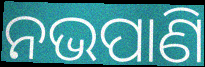
ନଭପାଣି